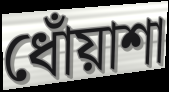
ধোঁয়াশা